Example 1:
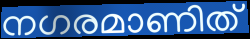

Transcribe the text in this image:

നഗരമാണിത്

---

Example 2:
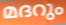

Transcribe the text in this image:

മദറും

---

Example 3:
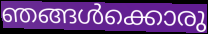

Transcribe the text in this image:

ഞങ്ങൾക്കൊരു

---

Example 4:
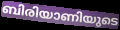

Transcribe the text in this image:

ബിരിയാണിയുടെ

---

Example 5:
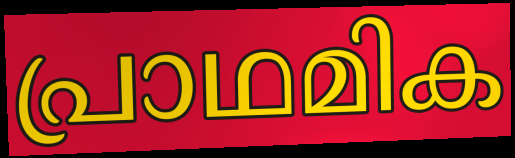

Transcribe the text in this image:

പ്രാഥമിക